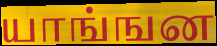
யாங்ஙன